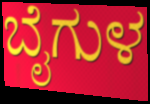
ಬೈಗುಳ